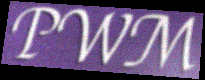
PWM